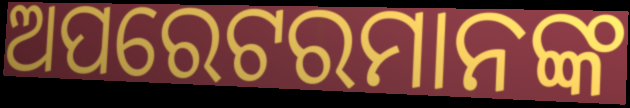
ଅପରେଟରମାନଙ୍କ